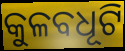
କୁଳବଧୂଟି